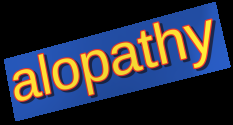
alopathy